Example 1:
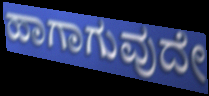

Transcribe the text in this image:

ಹಾಗಾಗುವುದೇ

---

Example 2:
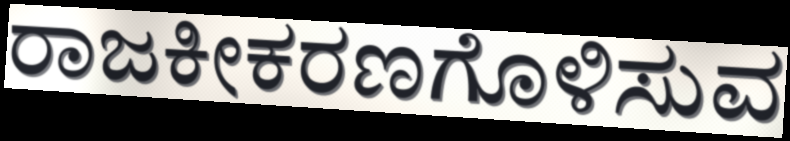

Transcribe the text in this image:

ರಾಜಕೀಕರಣಗೊಳಿಸುವ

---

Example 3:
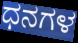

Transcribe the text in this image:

ಧನಗಳ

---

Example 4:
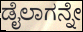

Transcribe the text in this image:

ಡೈಲಾಗನ್ನೇ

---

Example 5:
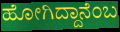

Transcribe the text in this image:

ಹೋಗಿದ್ದಾನೆಂಬ